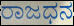
ರಾಜಧನ